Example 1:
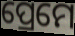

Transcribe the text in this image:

ପ୍ରେମେ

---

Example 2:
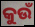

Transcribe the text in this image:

କୁଉଁ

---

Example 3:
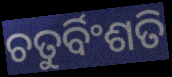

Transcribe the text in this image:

ଚତୁର୍ବିଂଶତି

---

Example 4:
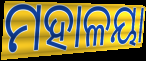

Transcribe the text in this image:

ମହାଳୟା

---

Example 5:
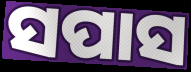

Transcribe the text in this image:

ସପାସ